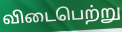
விடைபெற்று